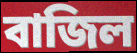
বাজিল